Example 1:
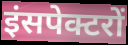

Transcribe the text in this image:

इंसपेक्टरों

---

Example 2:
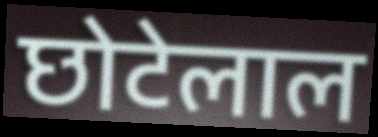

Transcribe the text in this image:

छोटेलाल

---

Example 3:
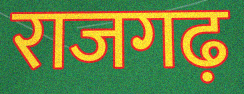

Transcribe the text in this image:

राजगढ़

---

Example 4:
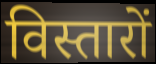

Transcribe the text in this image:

विस्तारों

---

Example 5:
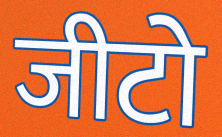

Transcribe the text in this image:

जीटो